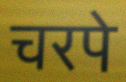
चरपे